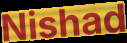
Nishad